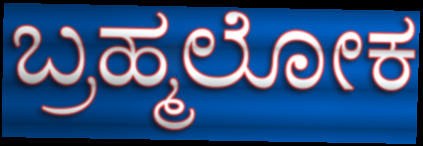
ಬ್ರಹ್ಮಲೋಕ